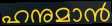
ഹനുമാൻ